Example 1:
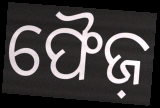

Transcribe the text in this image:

ଫୈଜ଼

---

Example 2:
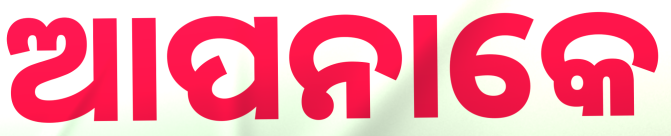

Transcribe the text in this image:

ଆପନାକେ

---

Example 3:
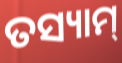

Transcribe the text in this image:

ତସ୍ୟାମ୍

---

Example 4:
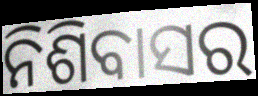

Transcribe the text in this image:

ନିଶିବାସର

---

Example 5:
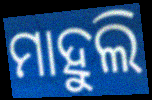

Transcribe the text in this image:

ମାହୁଲି